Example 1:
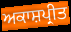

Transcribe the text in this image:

ਅਕਾਸ਼ਪ੍ਰੀਤ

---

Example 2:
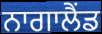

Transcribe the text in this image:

ਨਾਗਾਲੈਂਡ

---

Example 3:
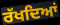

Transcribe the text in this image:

ਰੱਖਦਿਆਂ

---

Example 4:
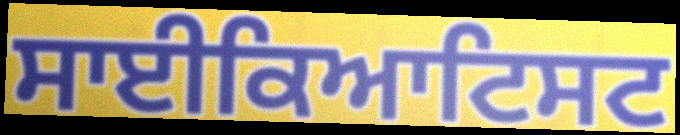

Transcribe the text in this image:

ਸਾਈਕਿਆਟਿਸਟ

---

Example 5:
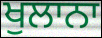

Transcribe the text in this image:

ਖੁਲਾਨਾ